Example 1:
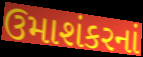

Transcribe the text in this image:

ઉમાશંકરનાં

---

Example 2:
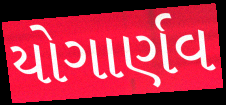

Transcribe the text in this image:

યોગાર્ણવ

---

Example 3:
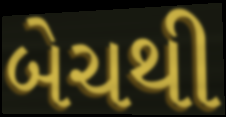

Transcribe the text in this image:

બેચથી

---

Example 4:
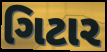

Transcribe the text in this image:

ગિટાર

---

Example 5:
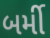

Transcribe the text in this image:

બર્મી